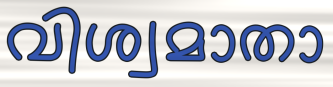
വിശ്വമാതാ